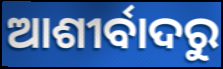
ଆଶୀର୍ବାଦରୁ